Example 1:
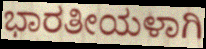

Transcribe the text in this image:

ಭಾರತೀಯಳಾಗಿ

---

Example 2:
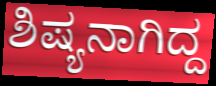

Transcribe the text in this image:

ಶಿಷ್ಯನಾಗಿದ್ದ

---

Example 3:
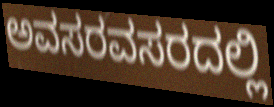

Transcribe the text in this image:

ಅವಸರವಸರದಲ್ಲಿ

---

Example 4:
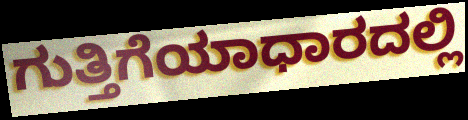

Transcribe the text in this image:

ಗುತ್ತಿಗೆಯಾಧಾರದಲ್ಲಿ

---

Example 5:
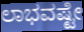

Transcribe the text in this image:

ಲಾಭವಷ್ಟೇ